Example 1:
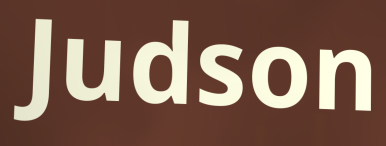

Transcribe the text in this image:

Judson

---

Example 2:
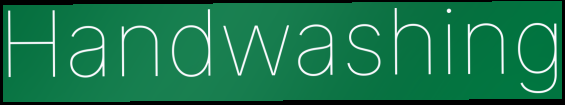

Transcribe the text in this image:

Handwashing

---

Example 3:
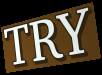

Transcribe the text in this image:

TRY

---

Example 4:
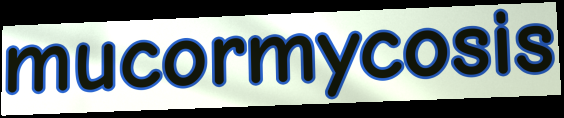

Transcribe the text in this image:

mucormycosis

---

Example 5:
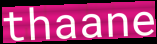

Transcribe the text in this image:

thaane